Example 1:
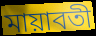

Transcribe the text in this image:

মায়াবতী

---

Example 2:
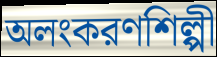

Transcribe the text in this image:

অলংকরণশিল্পী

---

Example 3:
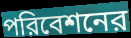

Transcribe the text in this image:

পরিবেশনের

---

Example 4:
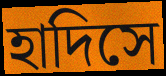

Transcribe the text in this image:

হাদিসে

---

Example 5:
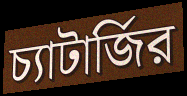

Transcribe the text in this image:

চ্যাটার্জির